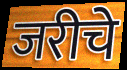
जरीचे